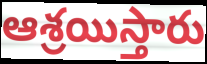
ఆశ్రయిస్తారు